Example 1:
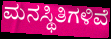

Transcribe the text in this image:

ಮನಸ್ಥಿತಿಗಳಿವೆ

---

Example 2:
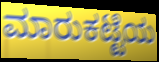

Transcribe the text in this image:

ಮಾರುಕಟ್ಟೆಯ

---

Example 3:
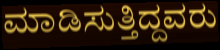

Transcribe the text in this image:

ಮಾಡಿಸುತ್ತಿದ್ದವರು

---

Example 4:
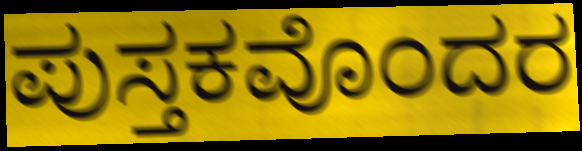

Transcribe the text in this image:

ಪುಸ್ತಕವೊಂದರ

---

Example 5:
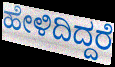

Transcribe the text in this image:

ಹೇಳಿದಿದ್ದರೆ